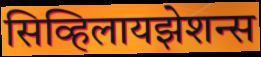
सिव्हिलायझेशन्स